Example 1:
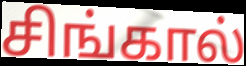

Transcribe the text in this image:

சிங்கால்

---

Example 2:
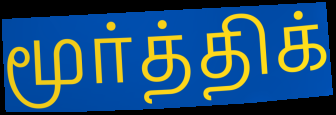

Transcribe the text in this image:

மூர்த்திக்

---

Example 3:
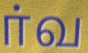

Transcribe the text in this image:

ர்வ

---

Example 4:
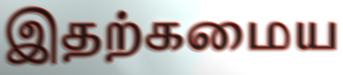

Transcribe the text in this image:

இதற்கமைய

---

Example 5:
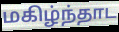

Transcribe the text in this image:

மகிழ்ந்தாட